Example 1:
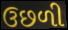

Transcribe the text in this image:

ઉછળી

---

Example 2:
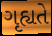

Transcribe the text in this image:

ગૃહ્યતે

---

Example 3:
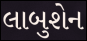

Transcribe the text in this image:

લાબુશેન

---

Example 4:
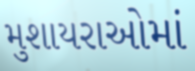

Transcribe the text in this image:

મુશાયરાઓમાં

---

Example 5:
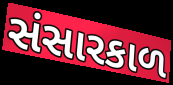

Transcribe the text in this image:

સંસારકાળ